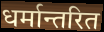
धर्मान्तरित